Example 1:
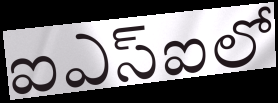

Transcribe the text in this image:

ఐఎస్ఐలో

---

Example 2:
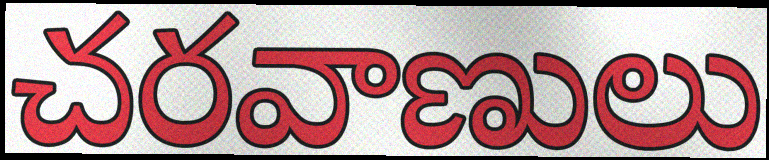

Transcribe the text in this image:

చరవాణులు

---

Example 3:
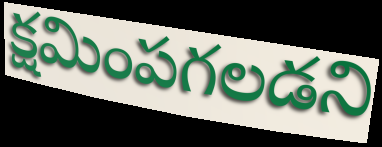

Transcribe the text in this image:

క్షమింపగలడని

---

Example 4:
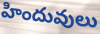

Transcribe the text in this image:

హిందువులు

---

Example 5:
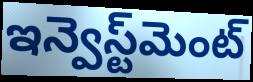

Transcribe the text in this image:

ఇన్వెస్ట్‌మెంట్